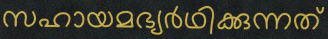
സഹായമഭ്യർഥിക്കുന്നത്